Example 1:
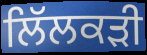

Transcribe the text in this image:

ਲਿੱਲਕੜੀ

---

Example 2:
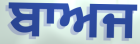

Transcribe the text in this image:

ਬਾਅਜ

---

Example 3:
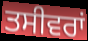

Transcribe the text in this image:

ਤਸੀਵਰਾਂ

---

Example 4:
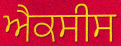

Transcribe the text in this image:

ਐਕਸੀਸ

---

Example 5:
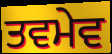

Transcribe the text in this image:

ਤਵਮੇਵ